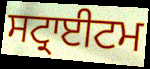
ਸਟ੍ਰਾਈਟਮ